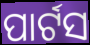
ପାର୍ଟସ